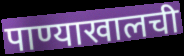
पाण्याखालची